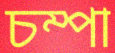
চম্পা